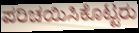
ಪರಿಚಯಿಸಿಕೊಟ್ಟರು